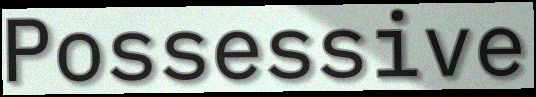
Possessive